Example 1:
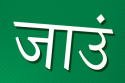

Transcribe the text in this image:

जाउं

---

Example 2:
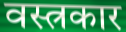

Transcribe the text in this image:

वस्त्रकार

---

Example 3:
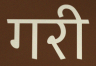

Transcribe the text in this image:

गरी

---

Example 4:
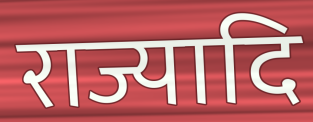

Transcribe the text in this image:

राज्यादि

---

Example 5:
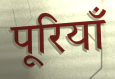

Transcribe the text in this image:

पूरियाँ